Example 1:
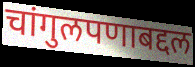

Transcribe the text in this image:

चांगुलपणाबद्दल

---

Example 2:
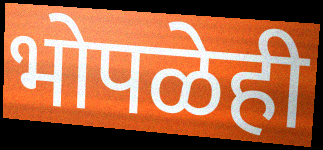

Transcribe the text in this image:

भोपळेही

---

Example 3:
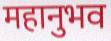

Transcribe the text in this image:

महानुभव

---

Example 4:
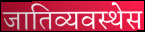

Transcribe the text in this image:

जातिव्यवस्थेस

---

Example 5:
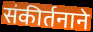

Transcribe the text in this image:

संकीर्तनाने